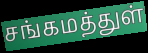
சங்கமத்துள்